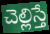
చెల్లిస్తే